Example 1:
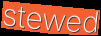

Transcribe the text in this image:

stewed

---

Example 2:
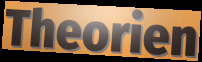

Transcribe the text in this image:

Theorien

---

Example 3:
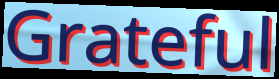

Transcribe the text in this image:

Grateful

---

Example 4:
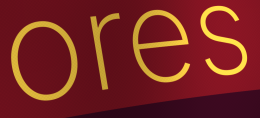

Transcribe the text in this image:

ores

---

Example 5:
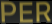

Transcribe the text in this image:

PER